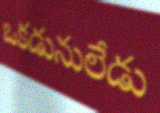
ఒకడునులేడు